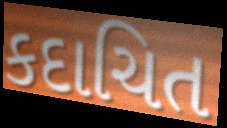
કદાચિત